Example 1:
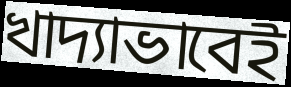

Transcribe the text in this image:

খাদ্যাভাবেই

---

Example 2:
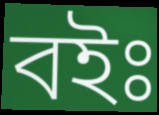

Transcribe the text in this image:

বইঃ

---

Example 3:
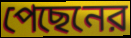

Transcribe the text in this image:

পেছেনের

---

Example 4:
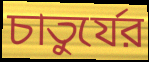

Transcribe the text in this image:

চাতুর্যের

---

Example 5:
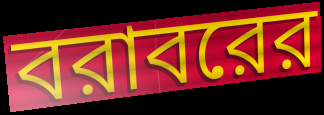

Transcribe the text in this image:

বরাবরের